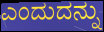
ಎಂದುದನ್ನು